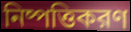
নিষ্পত্তিকরণ